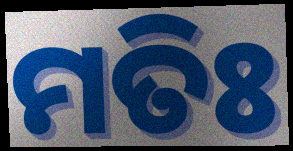
ମତିଃ